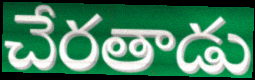
చేరతాడు